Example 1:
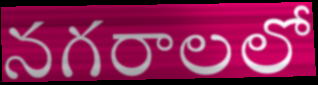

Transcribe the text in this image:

నగరాలలో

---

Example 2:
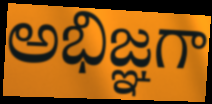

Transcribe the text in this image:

అభిజ్ఞగా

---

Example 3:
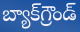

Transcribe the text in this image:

బ్యాక్‌గ్రౌండ్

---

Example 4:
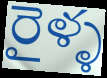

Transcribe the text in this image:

రైళ్ళ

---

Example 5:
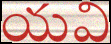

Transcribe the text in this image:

యవి